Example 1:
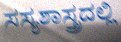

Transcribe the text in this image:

ಸಸ್ಯಶಾಸ್ತ್ರದಲ್ಲಿ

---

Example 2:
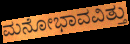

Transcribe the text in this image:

ಮನೋಭಾವವಿತ್ತು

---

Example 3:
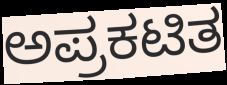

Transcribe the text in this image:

ಅಪ್ರಕಟಿತ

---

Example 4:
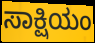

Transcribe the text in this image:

ಸಾಕ್ಷಿಯಂ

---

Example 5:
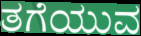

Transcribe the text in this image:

ತಗೆಯುವ